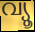
വ്യൂ